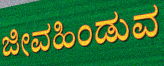
ಜೀವಹಿಂಡುವ